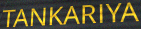
TANKARIYA